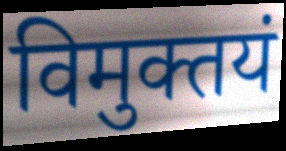
विमुक्तयं